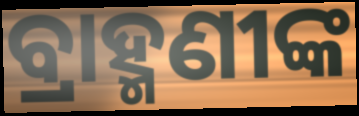
ବ୍ରାହ୍ମଣୀଙ୍କ